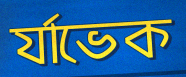
র্যাভেক